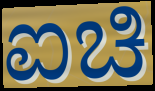
ಐಚಿ